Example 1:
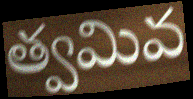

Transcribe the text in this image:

త్వమివ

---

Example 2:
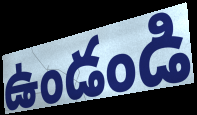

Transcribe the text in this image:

ఉండండి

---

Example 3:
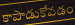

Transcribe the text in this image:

కాపాడుకోవడం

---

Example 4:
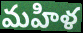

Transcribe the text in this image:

మహిళ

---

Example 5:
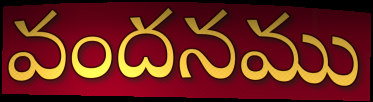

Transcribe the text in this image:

వందనము